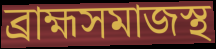
ব্রাহ্মসমাজস্থ